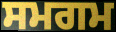
ਸਮਗਮ